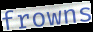
frowns